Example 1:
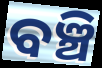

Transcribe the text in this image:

ବଞ୍ଚି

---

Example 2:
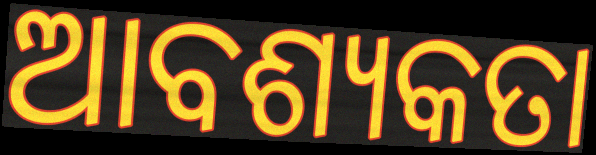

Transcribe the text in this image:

ଆବଶ୍ୟକତା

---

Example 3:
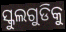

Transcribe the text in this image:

ସ୍କୁଲଗୁଡିକୁ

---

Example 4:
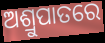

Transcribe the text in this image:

ଅଶ୍ରୁପାତରେ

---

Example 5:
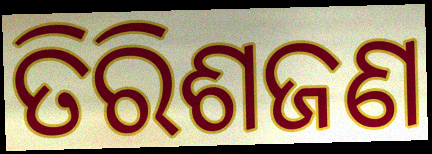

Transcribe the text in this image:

ତିରିଶଜଣ